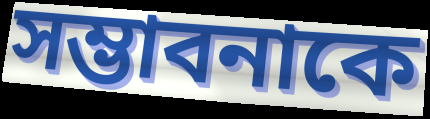
সম্ভাবনাকে